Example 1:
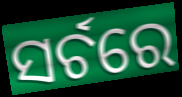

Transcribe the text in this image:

ସର୍ଚରେ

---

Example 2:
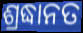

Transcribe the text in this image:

ଶ୍ରଦ୍ଧାନତ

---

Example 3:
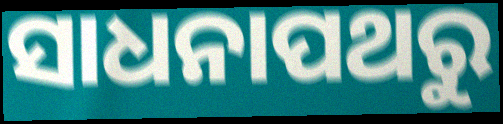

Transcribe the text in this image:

ସାଧନାପଥରୁ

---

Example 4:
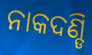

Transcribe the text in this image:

ନାକଦଣ୍ଡି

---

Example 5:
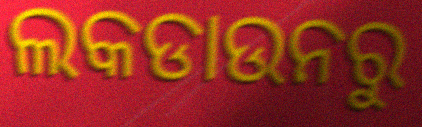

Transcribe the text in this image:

ଲକଡାଉନରୁ